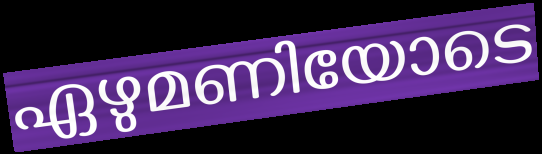
ഏഴുമണിയോടെ